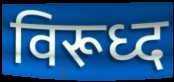
विरूध्द